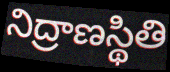
నిద్రాణస్థితి